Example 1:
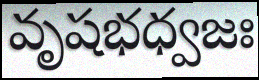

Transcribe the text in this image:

వృషభధ్వజః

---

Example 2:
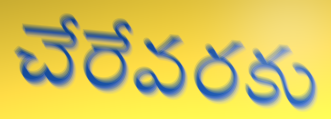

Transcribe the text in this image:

చేరేవరకు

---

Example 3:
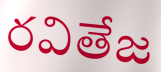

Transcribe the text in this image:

రవితేజ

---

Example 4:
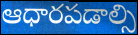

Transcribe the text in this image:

ఆధారపడాల్సి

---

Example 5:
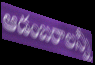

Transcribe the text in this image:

ఆడంబరాలన్నీ